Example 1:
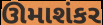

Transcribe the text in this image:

ઊમાશંકર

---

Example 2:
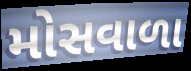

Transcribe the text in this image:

મોસવાળા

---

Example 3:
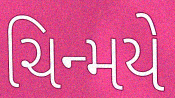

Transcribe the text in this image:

ચિન્મયે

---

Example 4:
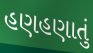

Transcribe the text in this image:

હણહણાતું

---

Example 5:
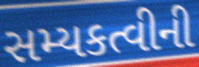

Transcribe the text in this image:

સમ્યકત્વીની